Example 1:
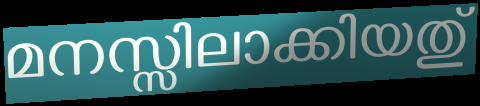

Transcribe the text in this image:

മനസ്സിലാക്കിയതു്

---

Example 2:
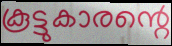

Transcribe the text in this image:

കൂട്ടുകാരന്റെ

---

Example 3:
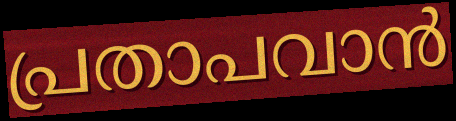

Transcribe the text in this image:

പ്രതാപവാൻ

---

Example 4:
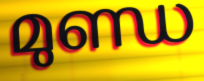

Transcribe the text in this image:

മുണ്ഡ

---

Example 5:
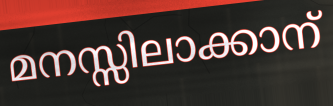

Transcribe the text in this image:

മനസ്സിലാക്കാന്